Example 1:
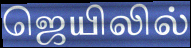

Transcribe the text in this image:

ஜெயிலில்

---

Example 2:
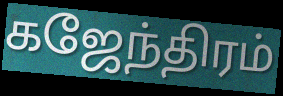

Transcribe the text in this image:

கஜேந்திரம்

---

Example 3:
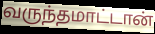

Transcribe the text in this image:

வருந்தமாட்டான்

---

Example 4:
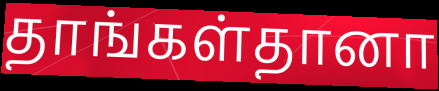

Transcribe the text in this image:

தாங்கள்தானா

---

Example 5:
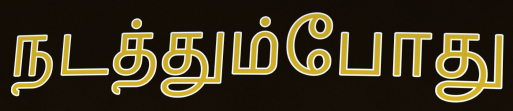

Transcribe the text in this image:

நடத்தும்போது